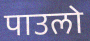
पाउलो